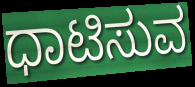
ಧಾಟಿಸುವ